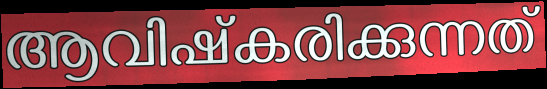
ആവിഷ്‌കരിക്കുന്നത്